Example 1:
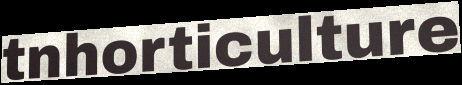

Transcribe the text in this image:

tnhorticulture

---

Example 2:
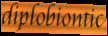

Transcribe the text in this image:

diplobiontic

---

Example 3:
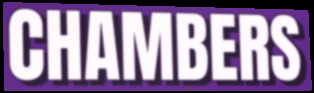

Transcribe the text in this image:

CHAMBERS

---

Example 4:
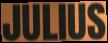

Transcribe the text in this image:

JULIUS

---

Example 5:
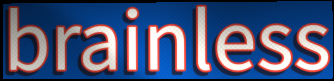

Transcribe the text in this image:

brainless